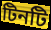
টিনটি